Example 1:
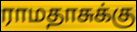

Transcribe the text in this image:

ராமதாசுக்கு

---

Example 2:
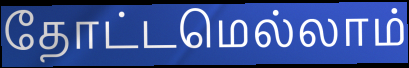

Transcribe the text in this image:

தோட்டமெல்லாம்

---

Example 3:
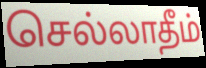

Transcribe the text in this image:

செல்லாதீம்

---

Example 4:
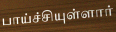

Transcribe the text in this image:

பாய்ச்சியுள்ளார்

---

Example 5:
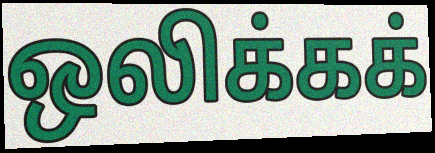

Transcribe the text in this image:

ஒலிக்கக்